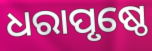
ଧରାପୃଷ୍ଠେ